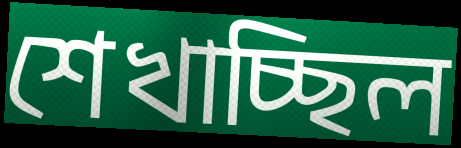
শেখাচ্ছিল